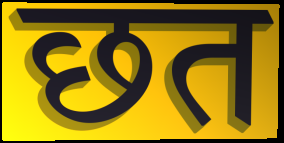
छत